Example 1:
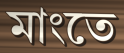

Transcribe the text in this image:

মাংতে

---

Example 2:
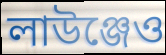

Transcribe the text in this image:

লাউঞ্জেও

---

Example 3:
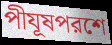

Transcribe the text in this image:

পীযূষপরশে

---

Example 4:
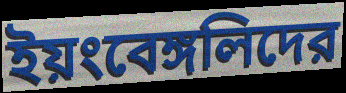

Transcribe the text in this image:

ইয়ংবেঙ্গলিদের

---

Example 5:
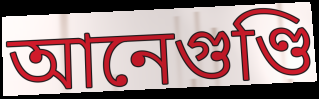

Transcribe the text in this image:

আনেগুণ্ডি